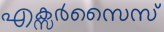
എക്സർസൈസ്